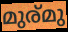
മുര്മു